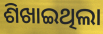
ଶିଖାଇଥିଲା